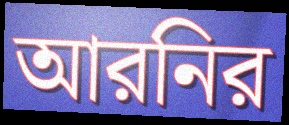
আরনির